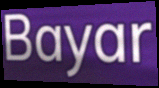
Bayar